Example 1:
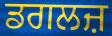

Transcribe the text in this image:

ਡਗਲਜ਼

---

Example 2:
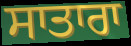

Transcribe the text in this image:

ਸਾਤਾਰਾ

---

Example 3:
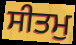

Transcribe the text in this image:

ਸੀਤਮੁ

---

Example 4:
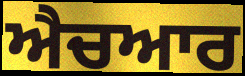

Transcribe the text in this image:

ਐਚਆਰ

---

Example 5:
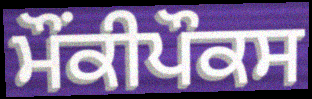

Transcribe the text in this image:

ਮੌਂਕੀਪੌਕਸ